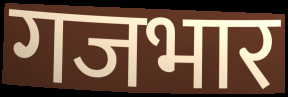
गजभार